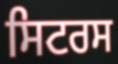
ਸਿਟਰਸ